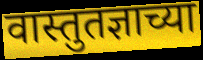
वास्तुतज्ञाच्या